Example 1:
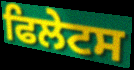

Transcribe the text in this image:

ਫਿਲੇਟਸ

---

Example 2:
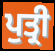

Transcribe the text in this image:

ਪੁਤ੍ਰੀ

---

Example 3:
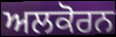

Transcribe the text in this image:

ਅਲਕੋਰਨ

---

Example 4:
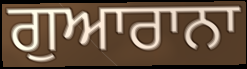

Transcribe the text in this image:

ਗੁਆਰਾਨਾ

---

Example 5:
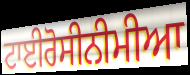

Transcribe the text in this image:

ਟਾਈਰੋਸੀਨੀਮੀਆ